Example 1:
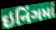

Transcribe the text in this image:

ઇનિંગમાં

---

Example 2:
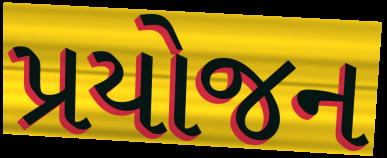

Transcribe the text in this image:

પ્રયોજન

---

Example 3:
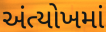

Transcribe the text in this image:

અંત્યોખમાં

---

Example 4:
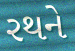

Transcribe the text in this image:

રથને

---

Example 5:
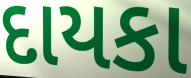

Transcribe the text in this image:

દાયકા